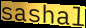
sashal